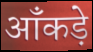
ऑंकड़े